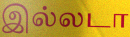
இல்லடா